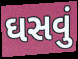
ઘસવું